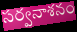
సర్వనాశనం